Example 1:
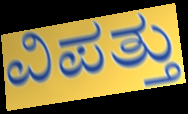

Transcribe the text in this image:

ವಿಪತ್ತು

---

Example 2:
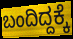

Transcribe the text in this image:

ಬಂದಿದ್ದಕ್ಕೆ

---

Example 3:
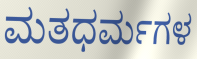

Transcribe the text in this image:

ಮತಧರ್ಮಗಳ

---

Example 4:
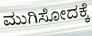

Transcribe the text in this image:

ಮುಗಿಸೋದಕ್ಕೆ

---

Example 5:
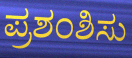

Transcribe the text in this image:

ಪ್ರಶಂಶಿಸು